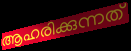
ആഹരിക്കുന്നത്